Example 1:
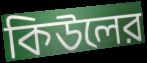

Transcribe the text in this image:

কিউলের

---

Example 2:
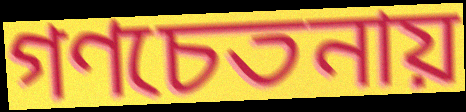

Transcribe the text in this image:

গণচেতনায়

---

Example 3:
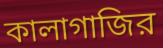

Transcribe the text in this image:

কালাগাজির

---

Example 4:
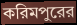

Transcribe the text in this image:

করিমপুরের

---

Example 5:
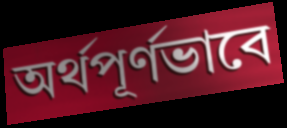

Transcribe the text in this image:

অর্থপূর্ণভাবে